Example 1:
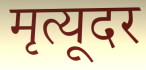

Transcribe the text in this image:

मृत्यूदर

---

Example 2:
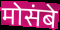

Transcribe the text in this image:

मोसंबे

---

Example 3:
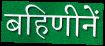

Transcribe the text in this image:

बहिणीनें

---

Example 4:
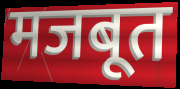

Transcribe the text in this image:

मजबूत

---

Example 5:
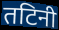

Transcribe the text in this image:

तटिनी